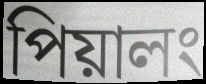
পিয়ালং